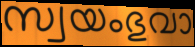
സ്വയംഭുവാ